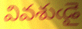
వివశుఁడై